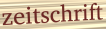
zeitschrift